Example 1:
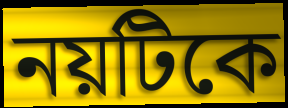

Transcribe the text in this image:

নয়টিকে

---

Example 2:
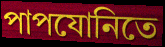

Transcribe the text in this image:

পাপযোনিতে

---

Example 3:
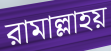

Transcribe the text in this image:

রামাল্লাহয়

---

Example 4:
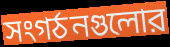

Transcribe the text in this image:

সংগঠনগুলোর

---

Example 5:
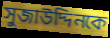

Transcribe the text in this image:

সুজাউদ্দিনকে